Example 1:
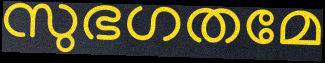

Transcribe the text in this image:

സുഭഗതമേ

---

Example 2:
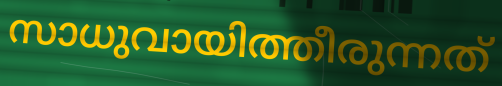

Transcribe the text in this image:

സാധുവായിത്തീരുന്നത്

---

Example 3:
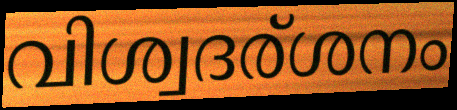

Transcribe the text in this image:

വിശ്വദര്ശനം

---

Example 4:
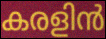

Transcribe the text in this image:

കരളിൻ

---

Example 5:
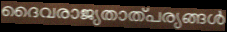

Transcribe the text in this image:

ദൈവരാജ്യതാത്പര്യങ്ങൾ